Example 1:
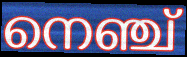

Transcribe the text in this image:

നെഞ്ച്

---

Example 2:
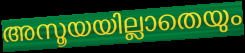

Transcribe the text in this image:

അസൂയയില്ലാതെയും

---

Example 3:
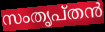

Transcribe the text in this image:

സംതൃപ്തൻ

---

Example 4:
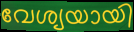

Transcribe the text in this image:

വേശ്യയായി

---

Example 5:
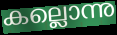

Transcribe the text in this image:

കല്ലൊന്നു